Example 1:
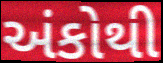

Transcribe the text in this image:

અંકોથી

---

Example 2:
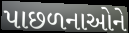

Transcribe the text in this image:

પાછળનાઓને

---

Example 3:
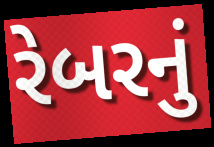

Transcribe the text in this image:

રેબરનું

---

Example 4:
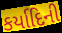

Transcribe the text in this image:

કર્યાદિની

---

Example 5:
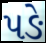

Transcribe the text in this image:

પઙે